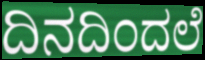
ದಿನದಿಂದಲೆ